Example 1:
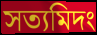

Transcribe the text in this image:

সত্যমিদং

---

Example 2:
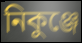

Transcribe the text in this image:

নিকুঞ্জে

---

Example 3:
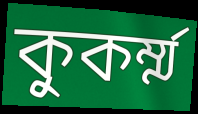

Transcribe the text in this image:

কুকর্ম্ম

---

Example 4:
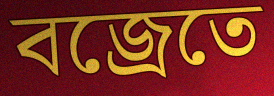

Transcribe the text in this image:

বজ্রেতে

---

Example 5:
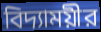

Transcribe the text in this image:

বিদ্যাময়ীর